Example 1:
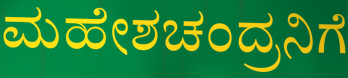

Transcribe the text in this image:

ಮಹೇಶಚಂದ್ರನಿಗೆ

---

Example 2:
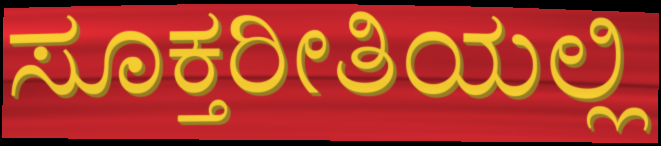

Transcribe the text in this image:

ಸೂಕ್ತರೀತಿಯಲ್ಲಿ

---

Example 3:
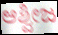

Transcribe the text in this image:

ಆಶ್ವೀಜ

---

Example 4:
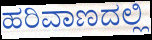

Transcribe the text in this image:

ಹರಿವಾಣದಲ್ಲಿ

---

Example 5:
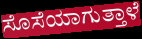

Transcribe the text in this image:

ಸೊಸೆಯಾಗುತ್ತಾಳೆ